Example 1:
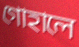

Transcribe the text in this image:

গোহালে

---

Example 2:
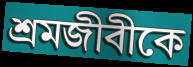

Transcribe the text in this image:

শ্রমজীবীকে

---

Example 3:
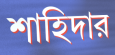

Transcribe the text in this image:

শাহিদার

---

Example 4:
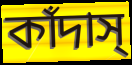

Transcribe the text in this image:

কাঁদাস্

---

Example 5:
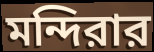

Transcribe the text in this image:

মন্দিরার